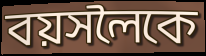
বয়সলৈকে